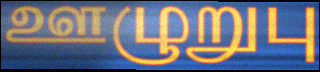
ஊழுறுபு